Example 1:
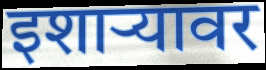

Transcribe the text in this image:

इशार्‍यावर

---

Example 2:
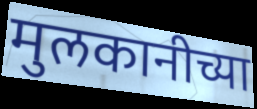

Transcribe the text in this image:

मुलकानीच्या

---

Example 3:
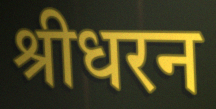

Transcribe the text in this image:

श्रीधरन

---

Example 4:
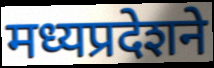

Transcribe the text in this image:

मध्यप्रदेशने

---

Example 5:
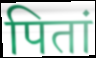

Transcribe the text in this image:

पितां